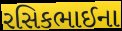
રસિકભાઈના